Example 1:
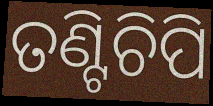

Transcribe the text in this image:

ତଣ୍ଟିଚିପି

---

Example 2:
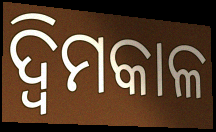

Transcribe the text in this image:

ଦ୍ବିମକାଳ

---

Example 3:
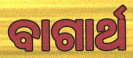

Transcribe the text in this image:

ବାଗାର୍ଥ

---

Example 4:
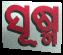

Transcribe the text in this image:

ସୂଷ୍ମ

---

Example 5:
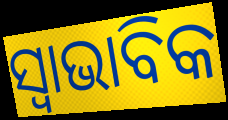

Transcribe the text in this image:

ସ୍ୱାଭାବିକ